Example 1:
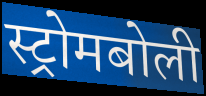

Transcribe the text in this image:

स्ट्रोमबोली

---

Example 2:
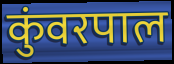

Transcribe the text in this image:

कुंवरपाल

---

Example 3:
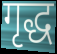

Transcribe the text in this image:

गृद्ध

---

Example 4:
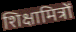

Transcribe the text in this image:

शिक्षामित्रों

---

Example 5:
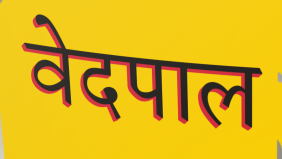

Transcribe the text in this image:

वेदपाल